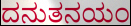
ದನುತನಯಂ